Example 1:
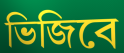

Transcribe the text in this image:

ভিজিবে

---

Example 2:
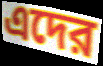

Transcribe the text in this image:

এদের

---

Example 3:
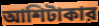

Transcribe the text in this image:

আশিটাকার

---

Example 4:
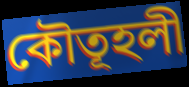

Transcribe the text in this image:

কৌতূহলী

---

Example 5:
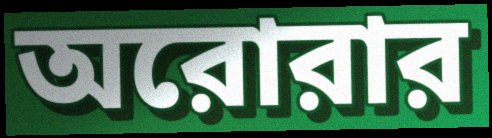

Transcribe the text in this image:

অরোরার